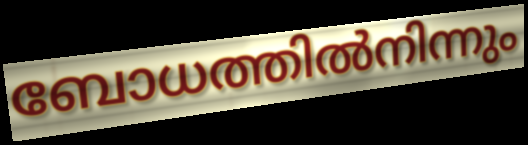
ബോധത്തിൽനിന്നും